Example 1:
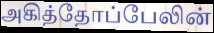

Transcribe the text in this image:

அகித்தோப்பேலின்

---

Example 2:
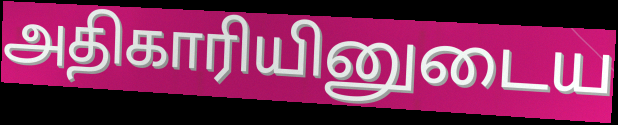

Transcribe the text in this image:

அதிகாரியினுடைய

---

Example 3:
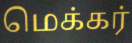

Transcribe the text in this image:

மெக்கர்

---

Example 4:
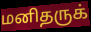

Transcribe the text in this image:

மனிதருக்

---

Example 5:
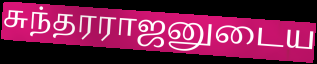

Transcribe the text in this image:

சுந்தரராஜனுடைய